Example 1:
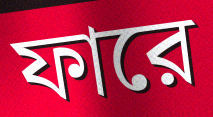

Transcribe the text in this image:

ফারে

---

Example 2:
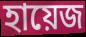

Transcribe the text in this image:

হায়েজ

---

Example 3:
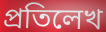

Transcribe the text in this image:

প্রতিলেখ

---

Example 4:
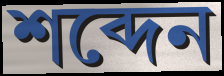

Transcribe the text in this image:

শব্দেন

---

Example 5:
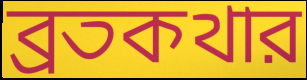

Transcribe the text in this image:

ব্রতকথার